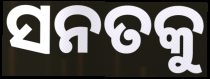
ସନତକୁ